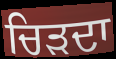
ਚਿੜਦਾ